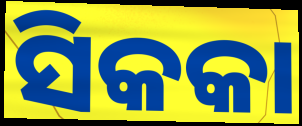
ସିକକା